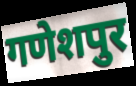
गणेशपुर